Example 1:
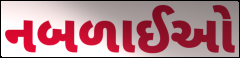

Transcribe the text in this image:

નબળાઈઓ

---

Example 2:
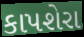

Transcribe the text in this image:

કાપશેરા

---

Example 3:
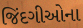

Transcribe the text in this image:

જિંદગીઓના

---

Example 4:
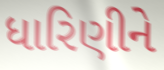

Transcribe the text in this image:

ધારિણીને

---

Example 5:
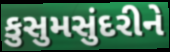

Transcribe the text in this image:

કુસુમસુંદરીને